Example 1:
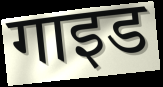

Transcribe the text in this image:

गाइड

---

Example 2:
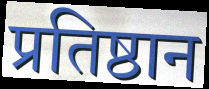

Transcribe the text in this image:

प्रतिष्ठान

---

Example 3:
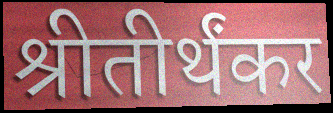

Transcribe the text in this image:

श्रीतीर्थंकर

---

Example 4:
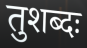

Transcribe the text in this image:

तुशब्दः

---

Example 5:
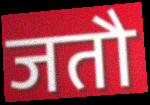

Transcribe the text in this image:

जतौ